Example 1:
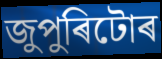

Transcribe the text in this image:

জুপুৰিটোৰ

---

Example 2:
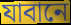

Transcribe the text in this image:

যাবানে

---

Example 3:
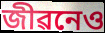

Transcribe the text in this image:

জীৱনেও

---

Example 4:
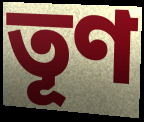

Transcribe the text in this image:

তূণ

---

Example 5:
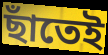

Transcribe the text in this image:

ছাঁতেই